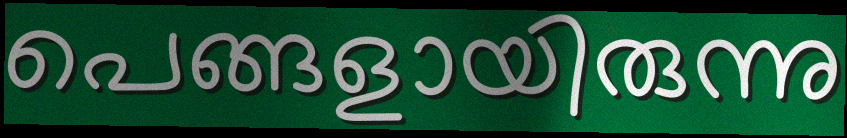
പെങ്ങളായിരുന്നു